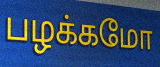
பழக்கமோ